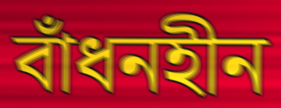
বাঁধনহীন